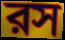
রস